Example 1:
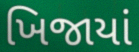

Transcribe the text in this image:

ખિજાયાં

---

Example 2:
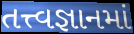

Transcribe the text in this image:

તત્ત્વજ્ઞાનમાં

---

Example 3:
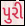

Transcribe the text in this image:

પુરી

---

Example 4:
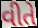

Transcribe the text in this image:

વીતે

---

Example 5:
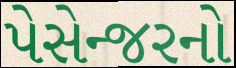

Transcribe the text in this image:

પેસેન્જરનો